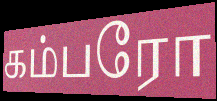
கம்பரோ